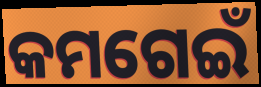
କମଗେଇଁ